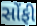
સોંફી